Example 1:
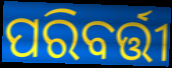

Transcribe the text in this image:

ପରିବର୍ତ୍ତୀ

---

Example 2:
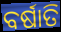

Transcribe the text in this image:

ବର୍ଷାତି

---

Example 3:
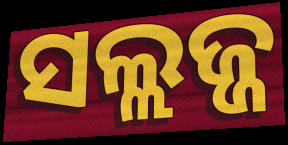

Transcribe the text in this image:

ସଲ୍ଲଜ୍ଜ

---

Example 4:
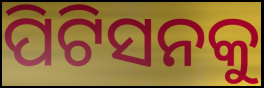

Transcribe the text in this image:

ପିଟିସନକୁ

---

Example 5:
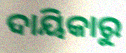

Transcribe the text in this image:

ଦାୟିକାରୁ